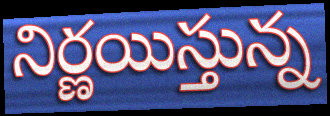
నిర్ణయిస్తున్న